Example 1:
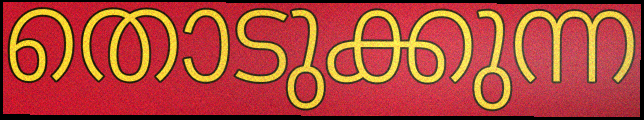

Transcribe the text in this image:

തൊടുക്കുന്ന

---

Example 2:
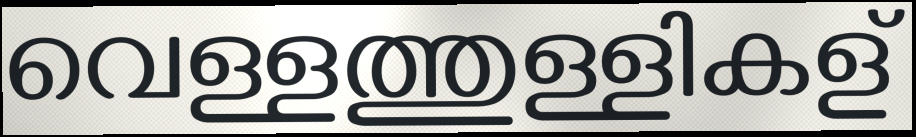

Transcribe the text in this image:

വെള്ളത്തുള്ളികള്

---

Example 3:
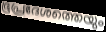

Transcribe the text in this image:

ഭൂപ്രദേശത്തെയും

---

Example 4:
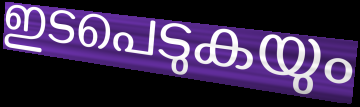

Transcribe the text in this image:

ഇടപെടുകയും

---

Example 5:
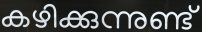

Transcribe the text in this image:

കഴിക്കുന്നുണ്ട്